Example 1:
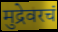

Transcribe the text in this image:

मुद्रेवरचं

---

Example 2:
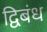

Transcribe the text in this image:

द्विबंध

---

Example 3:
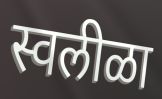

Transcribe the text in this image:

स्वलीळा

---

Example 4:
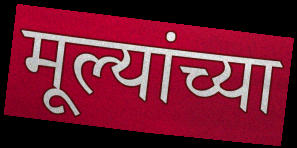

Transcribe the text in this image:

मूल्यांच्या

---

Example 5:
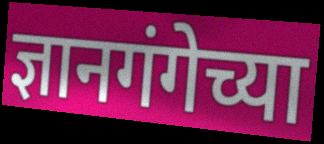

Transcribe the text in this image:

ज्ञानगंगेच्या